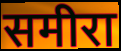
समीरा